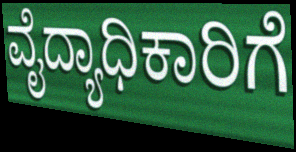
ವೈದ್ಯಾಧಿಕಾರಿಗೆ